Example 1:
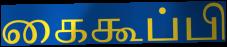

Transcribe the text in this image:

கைகூப்பி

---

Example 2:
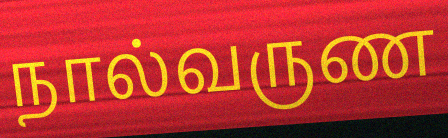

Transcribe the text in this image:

நால்வருண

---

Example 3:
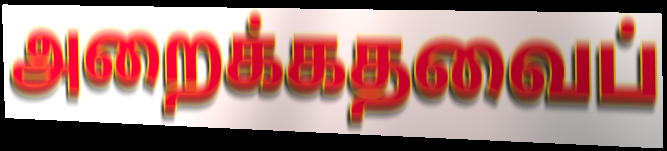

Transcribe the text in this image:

அறைக்கதவைப்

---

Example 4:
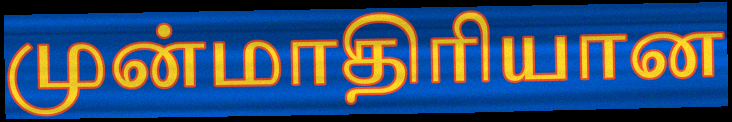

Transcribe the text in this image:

முன்மாதிரியான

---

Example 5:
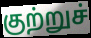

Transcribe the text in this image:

குற்றுச்